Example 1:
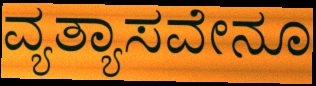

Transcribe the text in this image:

ವ್ಯತ್ಯಾಸವೇನೂ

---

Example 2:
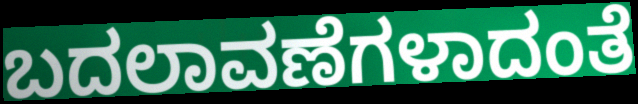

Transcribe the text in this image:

ಬದಲಾವಣೆಗಳಾದಂತೆ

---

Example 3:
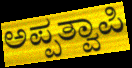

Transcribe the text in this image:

ಅಪ್ಪತ್ವಾಪಿ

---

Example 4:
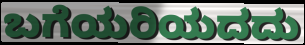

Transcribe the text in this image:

ಬಗೆಯರಿಯದದು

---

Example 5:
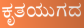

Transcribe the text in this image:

ಕೃತಯುಗದ